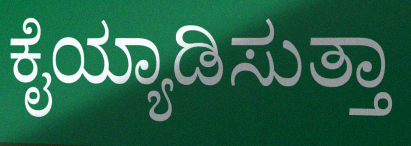
ಕೈಯ್ಯಾಡಿಸುತ್ತಾ